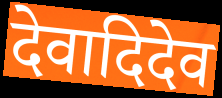
देवादिदेव